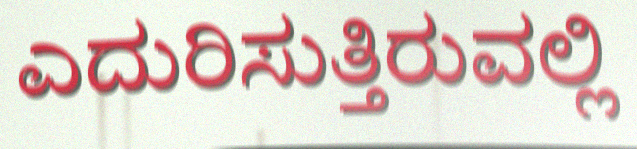
ಎದುರಿಸುತ್ತಿರುವಲ್ಲಿ